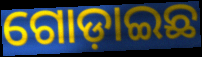
ଗୋଡ଼ାଇଛ